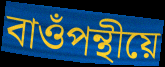
বাওঁপন্থীয়ে